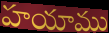
హయాము